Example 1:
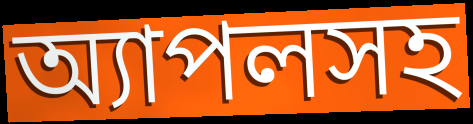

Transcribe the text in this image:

অ্যাপলসহ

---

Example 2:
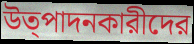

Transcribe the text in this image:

উত্পাদনকারীদের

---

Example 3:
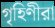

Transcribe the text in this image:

গৃহিণীরা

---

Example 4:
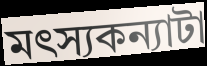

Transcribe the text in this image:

মৎস্যকন্যাটা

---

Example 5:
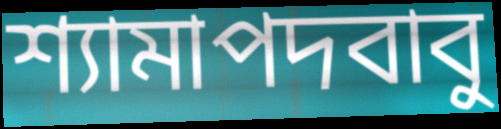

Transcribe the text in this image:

শ্যামাপদবাবু